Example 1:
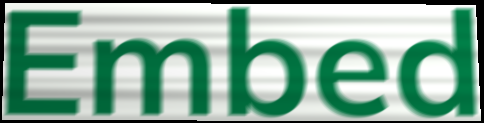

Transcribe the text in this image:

Embed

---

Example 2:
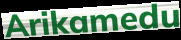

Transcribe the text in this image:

Arikamedu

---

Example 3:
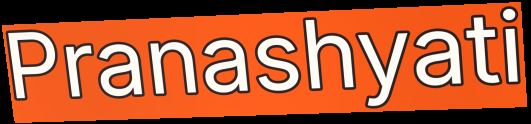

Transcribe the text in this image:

Pranashyati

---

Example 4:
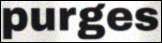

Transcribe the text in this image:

purges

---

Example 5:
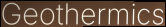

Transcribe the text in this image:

Geothermics